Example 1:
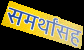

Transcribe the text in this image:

समर्थांसह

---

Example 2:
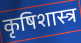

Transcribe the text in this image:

कृषिशास्त्र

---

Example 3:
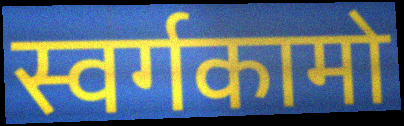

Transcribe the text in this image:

स्वर्गकामो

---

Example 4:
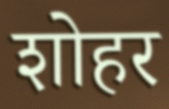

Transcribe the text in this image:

शोहर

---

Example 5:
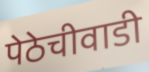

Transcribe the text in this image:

पेठेचीवाडी